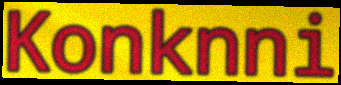
Konknni